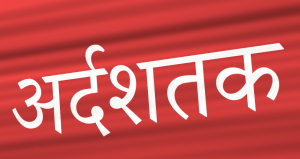
अर्दशतक